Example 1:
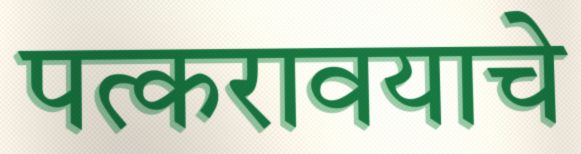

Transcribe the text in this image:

पत्करावयाचे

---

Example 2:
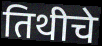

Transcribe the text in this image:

तिथीचे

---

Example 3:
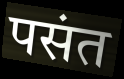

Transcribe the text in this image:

पसंत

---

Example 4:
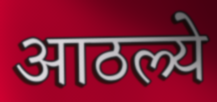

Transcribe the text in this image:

आठल्ये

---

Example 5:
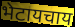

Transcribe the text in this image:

भेटायचाय